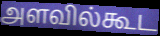
அளவில்கூட